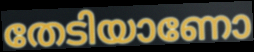
തേടിയാണോ